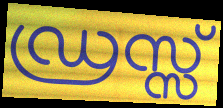
ഡ്രസ്സ്